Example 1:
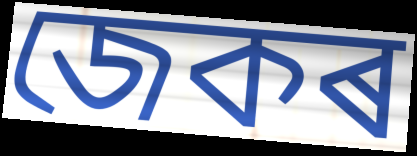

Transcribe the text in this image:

জেকৰ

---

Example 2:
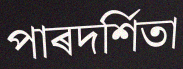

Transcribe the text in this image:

পাৰদৰ্শিতা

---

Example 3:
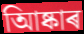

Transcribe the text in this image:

আিষ্কাৰ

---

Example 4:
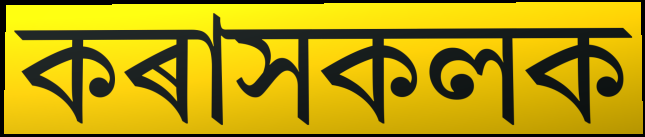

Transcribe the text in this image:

কৰাসকলক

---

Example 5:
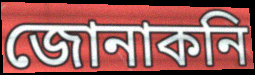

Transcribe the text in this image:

জোনাকনি